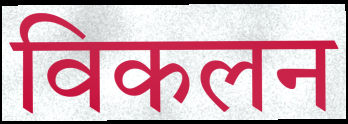
विकलन